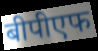
बीपीएफ